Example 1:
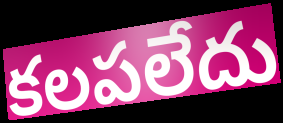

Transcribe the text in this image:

కలపలేదు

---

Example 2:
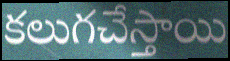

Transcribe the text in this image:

కలుగచేస్తాయి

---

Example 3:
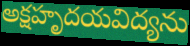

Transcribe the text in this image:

అక్షహృదయవిద్యను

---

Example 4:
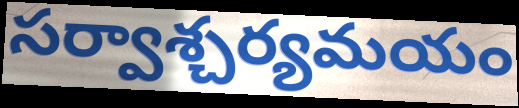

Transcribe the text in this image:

సర్వాశ్చర్యమయం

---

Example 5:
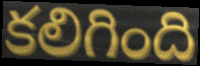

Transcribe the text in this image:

కలిగింది